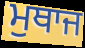
ਮੁਥਾਜ